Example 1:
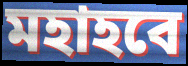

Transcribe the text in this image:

মহাহবে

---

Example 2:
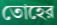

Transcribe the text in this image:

তোহের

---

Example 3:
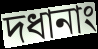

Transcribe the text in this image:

দধানাং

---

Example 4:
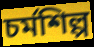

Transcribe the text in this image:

চর্মশিল্প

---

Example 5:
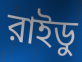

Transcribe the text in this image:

রাইডু